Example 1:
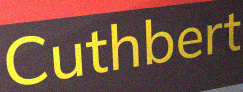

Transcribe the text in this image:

Cuthbert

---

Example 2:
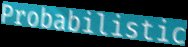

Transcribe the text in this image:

Probabilistic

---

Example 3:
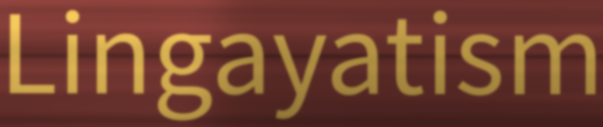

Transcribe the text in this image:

Lingayatism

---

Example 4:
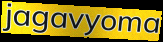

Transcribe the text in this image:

jagavyoma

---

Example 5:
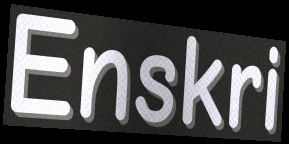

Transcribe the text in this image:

Enskri